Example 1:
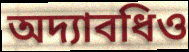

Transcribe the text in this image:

অদ্যাবধিও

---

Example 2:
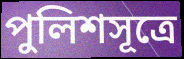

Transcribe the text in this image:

পুলিশসূত্রে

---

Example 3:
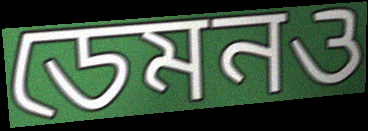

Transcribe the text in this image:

ডেমনও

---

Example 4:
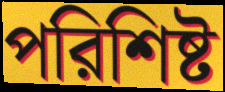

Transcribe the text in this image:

পরিশিষ্ট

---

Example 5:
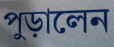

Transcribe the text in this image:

পুড়ালেন